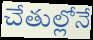
చేతుల్లోనే